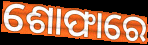
ଶୋଫାରେ